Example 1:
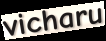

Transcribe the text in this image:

vicharu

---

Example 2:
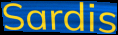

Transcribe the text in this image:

Sardis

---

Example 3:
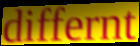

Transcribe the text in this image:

differnt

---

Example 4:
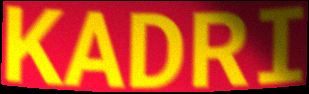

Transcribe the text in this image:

KADRI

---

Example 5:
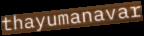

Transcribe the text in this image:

thayumanavar